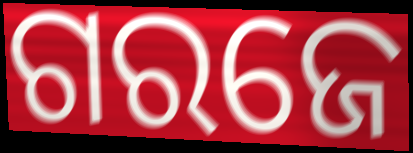
ଗରଜେ